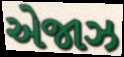
એજાઝ